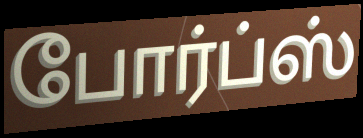
போர்ப்ஸ்